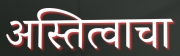
अस्तित्वाचा